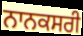
ਨਾਨਕਸਰੀ